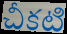
చీకటి